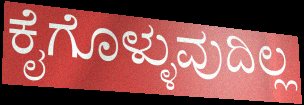
ಕೈಗೊಳ್ಳುವುದಿಲ್ಲ